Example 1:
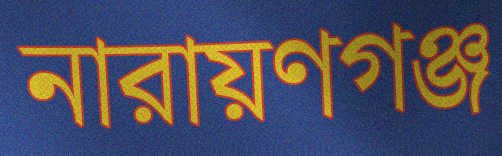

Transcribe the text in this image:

নারায়ণগঞ্জ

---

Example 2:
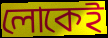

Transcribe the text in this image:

লোকেই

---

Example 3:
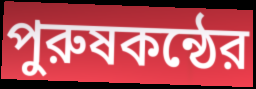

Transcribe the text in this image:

পুরুষকন্ঠের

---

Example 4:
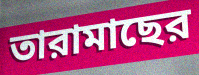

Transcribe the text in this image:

তারামাছের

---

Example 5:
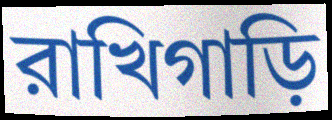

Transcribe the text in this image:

রাখিগাড়ি